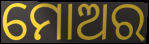
ମୋଅର